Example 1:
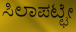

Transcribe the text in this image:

ಸಿಲಾಪಟ್ಟೇ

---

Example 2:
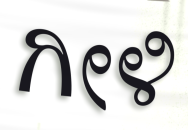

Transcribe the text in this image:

ಗೀಳಿ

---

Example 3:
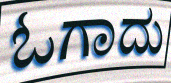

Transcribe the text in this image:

ಓಗಾದು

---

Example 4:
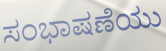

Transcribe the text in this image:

ಸಂಭಾಷಣೆಯು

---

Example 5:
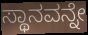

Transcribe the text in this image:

ಸ್ಥಾನವನ್ನೇ